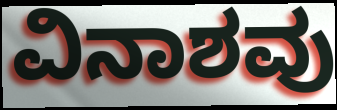
ವಿನಾಶವು